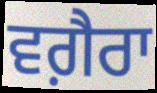
ਵਗ਼ੈਰਾ